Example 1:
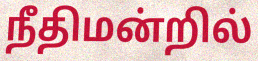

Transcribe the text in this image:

நீதிமன்றில்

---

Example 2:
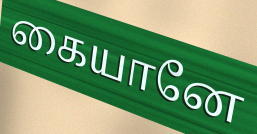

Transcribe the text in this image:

கையானே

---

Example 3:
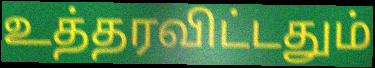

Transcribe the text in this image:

உத்தரவிட்டதும்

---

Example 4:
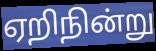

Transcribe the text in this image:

ஏறிநின்று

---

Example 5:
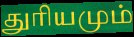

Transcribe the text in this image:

துரியமும்